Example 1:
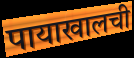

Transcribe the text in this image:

पायाखालची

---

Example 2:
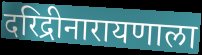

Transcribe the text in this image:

दरिद्रीनारायणाला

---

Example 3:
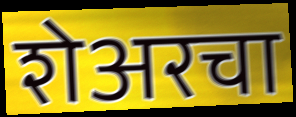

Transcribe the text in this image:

शेअरचा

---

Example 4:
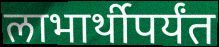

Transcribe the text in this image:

लाभार्थीपर्यंत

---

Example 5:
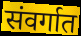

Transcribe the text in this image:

संवर्गात